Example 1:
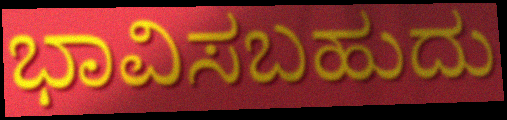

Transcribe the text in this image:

ಭಾವಿಸಬಹುದು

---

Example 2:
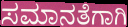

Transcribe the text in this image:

ಸಮಾನತೆಗಾಗಿ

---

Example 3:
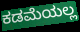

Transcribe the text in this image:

ಕಡಮೆಯಲ್ಲ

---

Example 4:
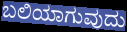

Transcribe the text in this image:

ಬಲಿಯಾಗುವುದು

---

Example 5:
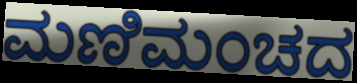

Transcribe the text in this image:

ಮಣಿಮಂಚದ